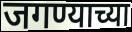
जगण्याच्या